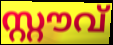
സ്റ്റൗവ്